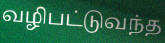
வழிபட்டுவந்த